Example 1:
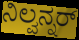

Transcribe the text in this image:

ನಿಲ್ವನ್ನರ್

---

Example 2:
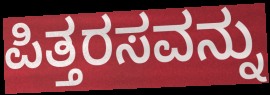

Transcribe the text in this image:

ಪಿತ್ತರಸವನ್ನು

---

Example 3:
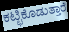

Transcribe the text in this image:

ಕಟ್ಟಿಕೊಡುತ್ತಾರೆ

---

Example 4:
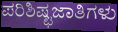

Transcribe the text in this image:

ಪರಿಶಿಷ್ಟಜಾತಿಗಳು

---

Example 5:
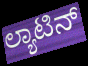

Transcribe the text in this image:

ಲ್ಯಾಟಿನ್